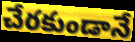
చేరకుండానే